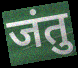
जंतु